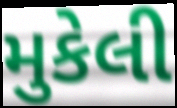
મુકેલી